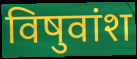
विषुवांश